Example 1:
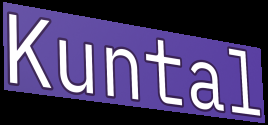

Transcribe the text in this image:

Kuntal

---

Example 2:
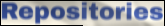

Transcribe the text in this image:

Repositories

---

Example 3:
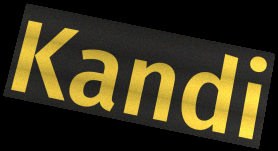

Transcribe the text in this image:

Kandi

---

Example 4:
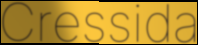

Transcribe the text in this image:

Cressida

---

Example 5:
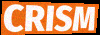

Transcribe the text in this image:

CRISM